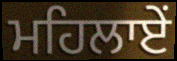
ਮਹਿਲਾਏਂ